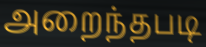
அறைந்தபடி